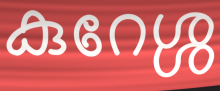
കുറേശ്ശ